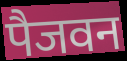
पैजवन